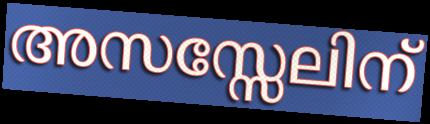
അസസ്സേലിന്